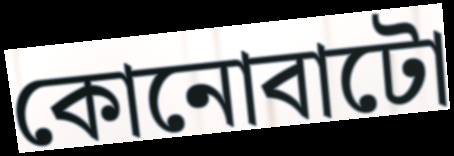
কোনোবাটো